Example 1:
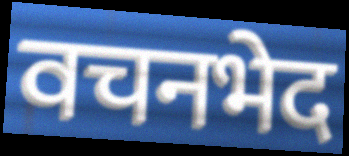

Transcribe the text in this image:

वचनभेद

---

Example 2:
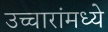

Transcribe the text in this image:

उच्चारांमध्ये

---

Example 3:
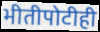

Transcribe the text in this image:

भीतीपोटीही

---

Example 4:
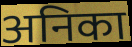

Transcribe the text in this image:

अनिका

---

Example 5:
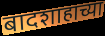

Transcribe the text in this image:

बादशाहाच्या